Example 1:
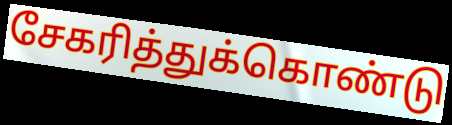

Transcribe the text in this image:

சேகரித்துக்கொண்டு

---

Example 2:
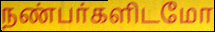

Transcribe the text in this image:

நண்பர்களிடமோ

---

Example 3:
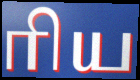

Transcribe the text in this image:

ரிய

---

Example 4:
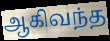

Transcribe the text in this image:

ஆகிவந்த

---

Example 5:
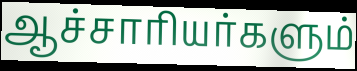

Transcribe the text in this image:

ஆச்சாரியர்களும்